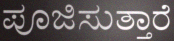
ಪೂಜಿಸುತ್ತಾರೆ